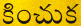
కించుక